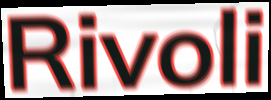
Rivoli